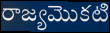
రాజ్యమొకటి